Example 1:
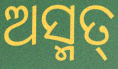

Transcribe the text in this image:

ଅସ୍ମତ୍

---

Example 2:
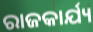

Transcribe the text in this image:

ରାଜକାର୍ଯ୍ୟ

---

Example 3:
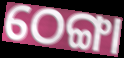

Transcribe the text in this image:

ଠେଙ୍ଗା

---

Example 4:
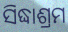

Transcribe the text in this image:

ସିଦ୍ଧାଶ୍ରମ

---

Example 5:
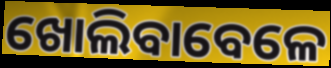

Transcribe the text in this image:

ଖୋଲିବାବେଳେ